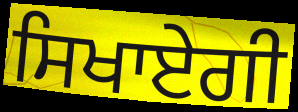
ਸਿਖਾਏਗੀ